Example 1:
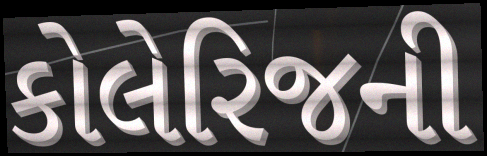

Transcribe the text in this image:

કોલેરિજની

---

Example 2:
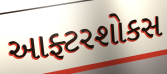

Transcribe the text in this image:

આફ્ટરશોકસ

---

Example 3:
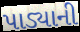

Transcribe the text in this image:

પાડ્યાની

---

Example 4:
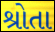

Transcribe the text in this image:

શ્રોતા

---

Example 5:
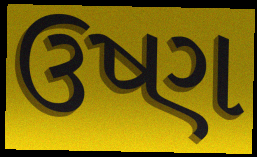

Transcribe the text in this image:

ઉષ્ણ